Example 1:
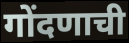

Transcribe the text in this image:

गोंदणाची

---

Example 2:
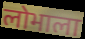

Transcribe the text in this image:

लोभाला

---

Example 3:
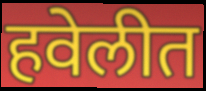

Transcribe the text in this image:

हवेलीत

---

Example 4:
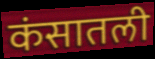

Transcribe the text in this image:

कंसातली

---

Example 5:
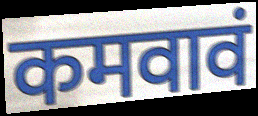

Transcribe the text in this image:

कमवावं